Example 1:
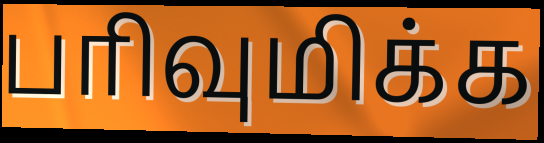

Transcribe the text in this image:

பரிவுமிக்க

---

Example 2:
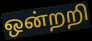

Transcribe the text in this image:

ஒன்றறி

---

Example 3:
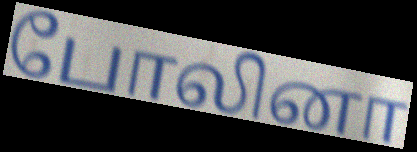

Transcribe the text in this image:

போலினா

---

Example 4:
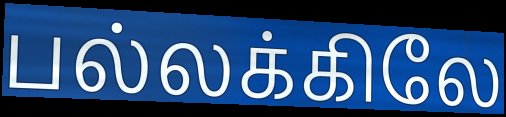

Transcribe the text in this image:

பல்லக்கிலே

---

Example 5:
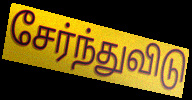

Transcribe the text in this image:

சேர்ந்துவிடு